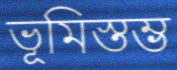
ভূমিস্তম্ভ